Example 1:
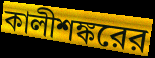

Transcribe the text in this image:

কালীশঙ্করের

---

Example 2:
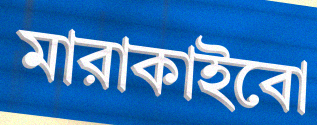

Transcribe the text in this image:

মারাকাইবো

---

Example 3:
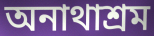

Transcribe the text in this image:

অনাথাশ্রম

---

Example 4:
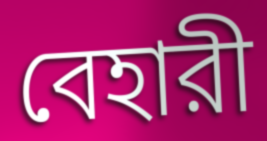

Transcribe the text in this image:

বেহারী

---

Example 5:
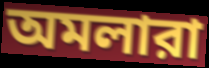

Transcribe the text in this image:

অমলারা